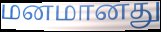
மனமானது